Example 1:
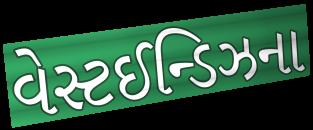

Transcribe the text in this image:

વેસ્ટઈન્ડિઝના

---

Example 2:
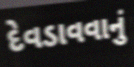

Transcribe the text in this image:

દેવડાવવાનું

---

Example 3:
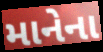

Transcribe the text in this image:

માનેના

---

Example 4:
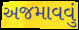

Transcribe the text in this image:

અજમાવવું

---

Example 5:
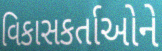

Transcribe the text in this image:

વિકાસકર્તાઓને